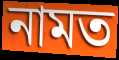
নামত